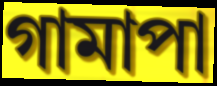
গামাপা